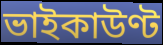
ভাইকাউণ্ট